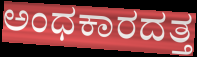
ಅಂಧಕಾರದತ್ತ